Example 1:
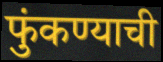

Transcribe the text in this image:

फुंकण्याची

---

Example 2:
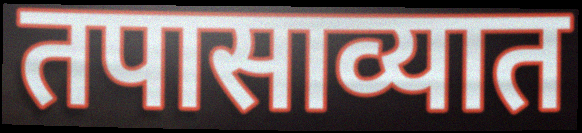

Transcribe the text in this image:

तपासाव्यात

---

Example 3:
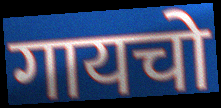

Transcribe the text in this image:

गायचो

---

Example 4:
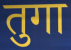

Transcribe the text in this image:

तुगा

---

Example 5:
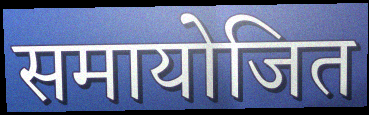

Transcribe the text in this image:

समायोजित